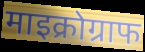
माइक्रोग्राफ